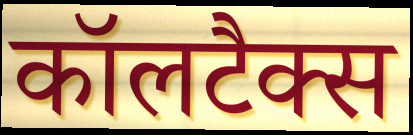
कॉलटैक्स